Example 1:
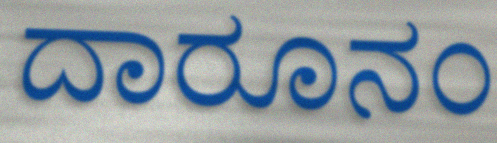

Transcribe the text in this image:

ದಾರೂನಂ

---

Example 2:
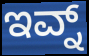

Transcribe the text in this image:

ಇವ್ನ್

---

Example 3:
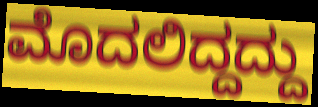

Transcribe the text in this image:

ಮೊದಲಿದ್ದದ್ದು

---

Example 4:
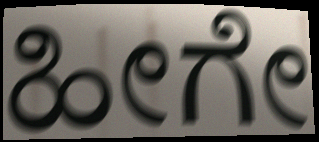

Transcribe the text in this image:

ಹೀಗೇ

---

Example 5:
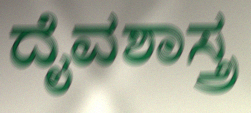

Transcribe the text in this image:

ದೈವಶಾಸ್ತ್ರ